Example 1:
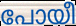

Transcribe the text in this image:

പോയീ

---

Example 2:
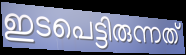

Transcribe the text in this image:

ഇടപെട്ടിരുന്നത്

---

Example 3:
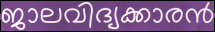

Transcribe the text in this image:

ജാലവിദ്യക്കാരൻ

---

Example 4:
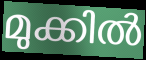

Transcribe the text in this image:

മുക്കിൽ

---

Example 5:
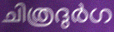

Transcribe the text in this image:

ചിത്രദുർഗ